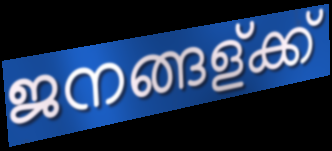
ജനങ്ങള്ക്ക്